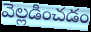
వెల్లడించడం